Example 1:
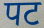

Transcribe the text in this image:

पट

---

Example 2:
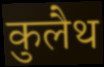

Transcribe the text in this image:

कुलैथ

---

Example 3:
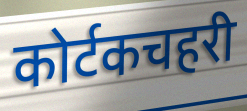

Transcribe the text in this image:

कोर्टकचहरी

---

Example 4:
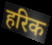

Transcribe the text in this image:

हरिक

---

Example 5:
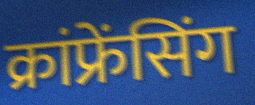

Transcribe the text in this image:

क्रांफ्रेंसिंग